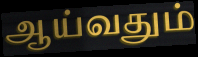
ஆய்வதும்